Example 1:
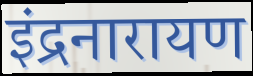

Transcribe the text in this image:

इंद्रनारायण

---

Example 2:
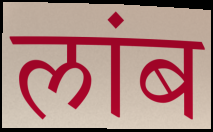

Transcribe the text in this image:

लांब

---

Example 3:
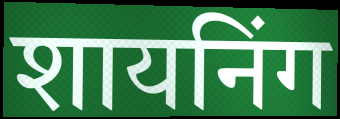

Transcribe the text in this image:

शायनिंग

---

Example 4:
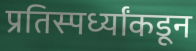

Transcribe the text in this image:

प्रतिस्पर्ध्यांकडून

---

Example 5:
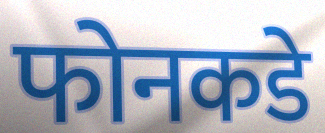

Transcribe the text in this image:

फोनकडे